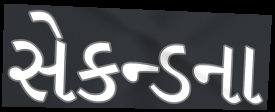
સેકન્ડના